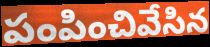
పంపించివేసిన